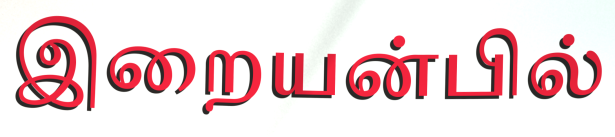
இறையன்பில்